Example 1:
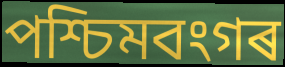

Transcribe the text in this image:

পশ্চিমবংগৰ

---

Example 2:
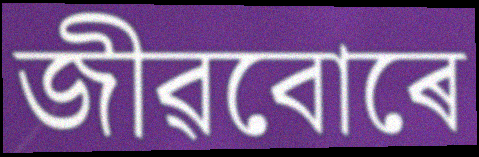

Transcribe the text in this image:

জীৱবোৰে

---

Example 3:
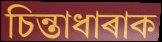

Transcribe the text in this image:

চিন্তাধাৰাক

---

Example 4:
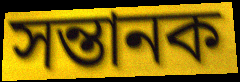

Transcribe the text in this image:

সন্তানক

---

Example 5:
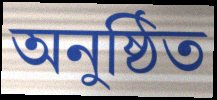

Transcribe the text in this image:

অনুষ্ঠিত